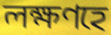
লক্ষণহে